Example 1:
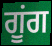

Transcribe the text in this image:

ਗੂਂਗ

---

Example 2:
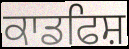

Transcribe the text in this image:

ਕਾਡਫਿਸ਼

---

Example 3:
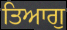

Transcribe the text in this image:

ਤਿਆਗੁ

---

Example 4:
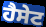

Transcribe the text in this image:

ਹੈਸੇਟ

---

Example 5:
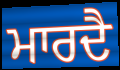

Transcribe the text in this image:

ਮਾਰਦੈ